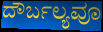
ದೌರ್ಬಲ್ಯವೂ